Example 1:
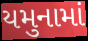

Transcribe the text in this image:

યમુનામાં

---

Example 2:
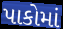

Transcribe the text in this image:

પાકોમાં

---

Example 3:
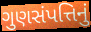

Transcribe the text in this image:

ગુણસંપત્તિનું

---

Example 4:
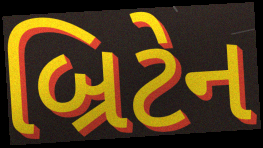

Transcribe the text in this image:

બ્રિટેન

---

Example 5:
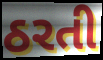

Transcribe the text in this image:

ઠરતી